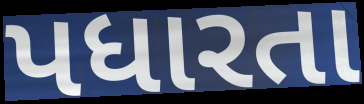
પધારતા